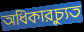
অধিকারচ্যুত